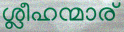
ശ്ലീഹന്മാര്